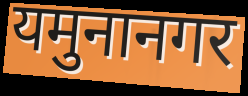
यमुनानगर